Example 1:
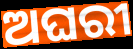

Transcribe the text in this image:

ଅଘରୀ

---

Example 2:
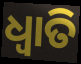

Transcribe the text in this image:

ଧ୍ବାତି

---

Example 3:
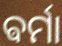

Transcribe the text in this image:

ଵର୍ମା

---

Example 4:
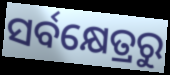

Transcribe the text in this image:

ସର୍ବକ୍ଷେତ୍ରରୁ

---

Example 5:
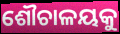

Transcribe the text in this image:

ଶୌଚାଳୟକୁ